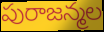
పురాజన్మల